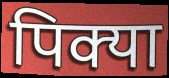
पिक्या